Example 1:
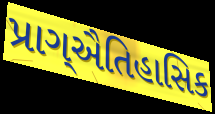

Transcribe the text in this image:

પ્રાગ્ઐતિહાસિક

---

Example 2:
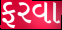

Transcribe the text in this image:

ફરવા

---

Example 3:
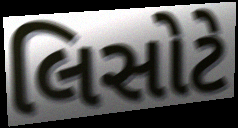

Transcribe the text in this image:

લિસોટે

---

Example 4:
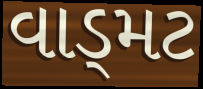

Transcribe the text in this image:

વાડ્મટ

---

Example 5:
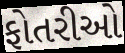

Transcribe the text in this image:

ફોતરીઓ